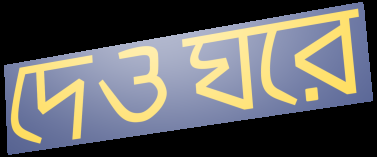
দেওঘরে